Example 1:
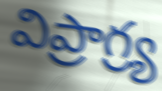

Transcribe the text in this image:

విప్రాగ్ర్య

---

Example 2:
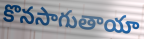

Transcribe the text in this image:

కొనసాగుతాయా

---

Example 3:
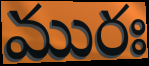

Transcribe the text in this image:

మురః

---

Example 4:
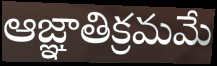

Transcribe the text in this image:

ఆజ్ఞాతిక్రమమే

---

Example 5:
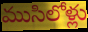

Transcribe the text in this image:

ముసిలోళ్లు